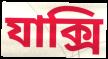
যাক্সি